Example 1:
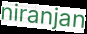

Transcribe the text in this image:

niranjan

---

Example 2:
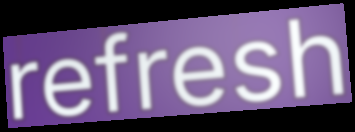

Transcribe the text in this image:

refresh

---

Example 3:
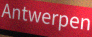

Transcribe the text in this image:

Antwerpen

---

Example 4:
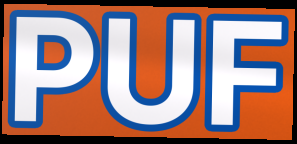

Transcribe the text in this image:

PUF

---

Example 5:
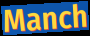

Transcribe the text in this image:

Manch